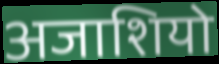
अजाशियो